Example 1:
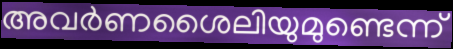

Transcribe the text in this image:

അവർണശൈലിയുമുണ്ടെന്ന്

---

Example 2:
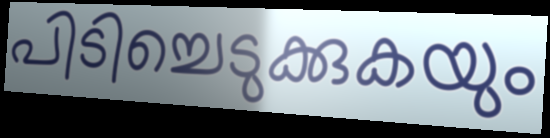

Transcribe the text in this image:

പിടിച്ചെടുക്കുകയും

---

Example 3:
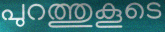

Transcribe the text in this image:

പുറത്തുകൂടെ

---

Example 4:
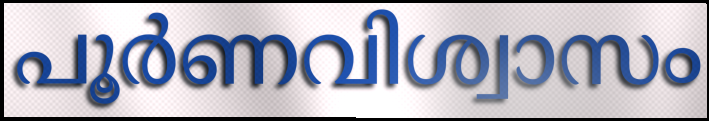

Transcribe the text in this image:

പൂർണവിശ്വാസം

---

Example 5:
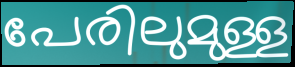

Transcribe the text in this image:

പേരിലുമുള്ള